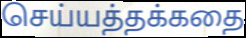
செய்யத்தக்கதை